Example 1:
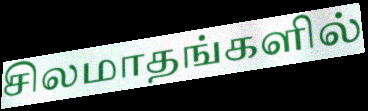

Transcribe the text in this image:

சிலமாதங்களில்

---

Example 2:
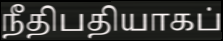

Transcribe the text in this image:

நீதிபதியாகப்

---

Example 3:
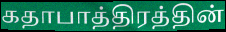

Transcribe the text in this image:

கதாபாத்திரத்தின்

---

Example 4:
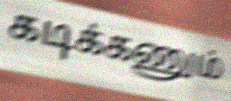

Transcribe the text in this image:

கடிக்கணும்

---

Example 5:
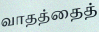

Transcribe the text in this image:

வாதத்தைத்